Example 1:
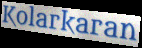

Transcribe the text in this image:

Kolarkaran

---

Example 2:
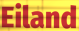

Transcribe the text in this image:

Eiland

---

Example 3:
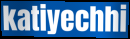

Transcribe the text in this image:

katiyechhi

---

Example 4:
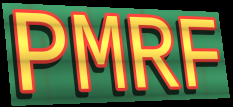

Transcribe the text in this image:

PMRF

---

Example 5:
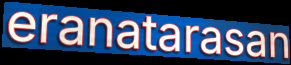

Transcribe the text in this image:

eranatarasan